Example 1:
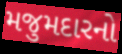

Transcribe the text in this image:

મજુમદારનો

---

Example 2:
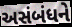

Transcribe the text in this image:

અસંબંધને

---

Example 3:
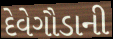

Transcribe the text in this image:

દેવેગૌડાની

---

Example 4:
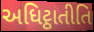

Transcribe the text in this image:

અધિટ્ઠાતીતિ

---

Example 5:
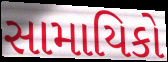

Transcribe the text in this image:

સામાયિકો